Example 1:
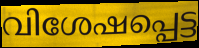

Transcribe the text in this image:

വിശേഷപ്പെട്ട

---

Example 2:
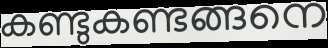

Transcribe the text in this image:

കണ്ടുകണ്ടങ്ങനെ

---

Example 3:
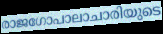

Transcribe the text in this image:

രാജഗോപാലാചാരിയുടെ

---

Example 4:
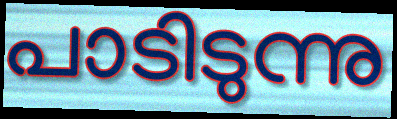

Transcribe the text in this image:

പാടിടുന്നു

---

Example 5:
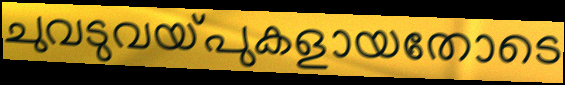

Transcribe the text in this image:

ചുവടുവയ്‌പുകളായതോടെ